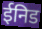
ईनिड